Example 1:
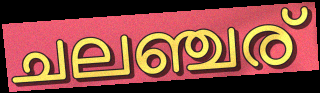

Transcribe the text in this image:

ചലഞ്ചര്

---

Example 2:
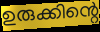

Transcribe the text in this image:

ഉരുക്കിന്റെ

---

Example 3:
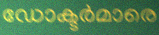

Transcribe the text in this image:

ഡോക്ടർമാരെ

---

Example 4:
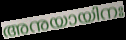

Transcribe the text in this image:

അനുയായിനഃ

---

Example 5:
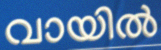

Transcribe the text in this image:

വായിൽ